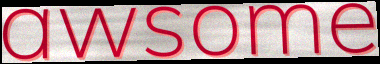
awsome